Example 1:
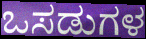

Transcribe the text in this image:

ಒಸಡುಗಳ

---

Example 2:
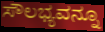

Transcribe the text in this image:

ಸೌಲಭ್ಯವನ್ನೂ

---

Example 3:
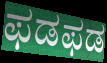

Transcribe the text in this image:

ಫಡಫಡ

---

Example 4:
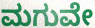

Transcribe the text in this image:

ಮಗುವೇ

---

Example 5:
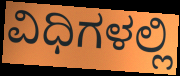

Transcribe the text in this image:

ವಿಧಿಗಳಲ್ಲಿ